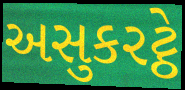
અસુકરટ્ઠે